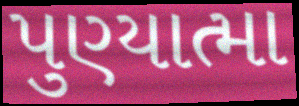
પુણ્યાત્મા